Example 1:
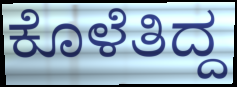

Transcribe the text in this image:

ಕೊಳೆತಿದ್ದ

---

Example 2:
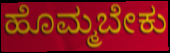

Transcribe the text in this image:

ಹೊಮ್ಮಬೇಕು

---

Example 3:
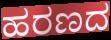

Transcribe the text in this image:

ಹರಣದ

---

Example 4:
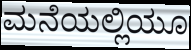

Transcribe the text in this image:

ಮನೆಯಲ್ಲಿಯೂ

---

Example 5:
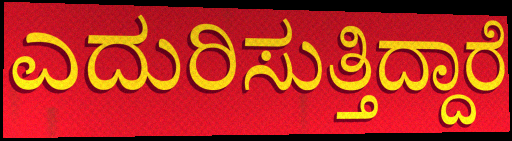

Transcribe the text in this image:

ಎದುರಿಸುತ್ತಿದ್ದಾರೆ